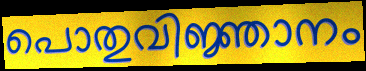
പൊതുവിജ്ഞാനം